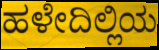
ಹಳೇದಿಲ್ಲಿಯ